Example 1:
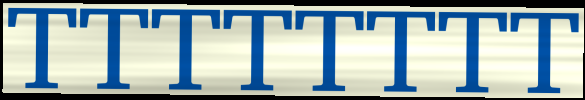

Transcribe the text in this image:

TTTTTTTT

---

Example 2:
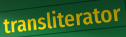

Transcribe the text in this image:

transliterator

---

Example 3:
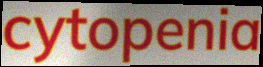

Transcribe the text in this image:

cytopenia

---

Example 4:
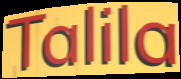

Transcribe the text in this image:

Talila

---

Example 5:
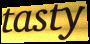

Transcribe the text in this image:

tasty